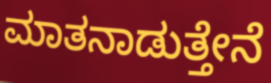
ಮಾತನಾಡುತ್ತೇನೆ